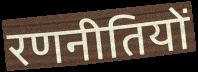
रणनीतियों